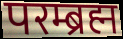
परम्ब्रह्म